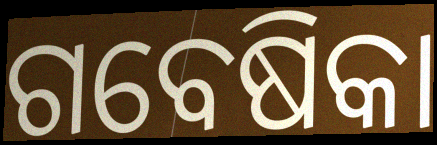
ଗବେଷିକା